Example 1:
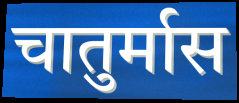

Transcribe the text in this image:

चातुर्मास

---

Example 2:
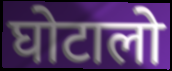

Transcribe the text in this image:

घोटालो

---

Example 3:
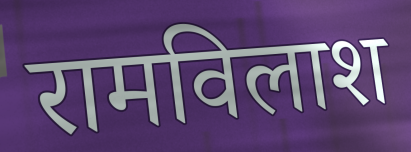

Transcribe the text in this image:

रामविलाश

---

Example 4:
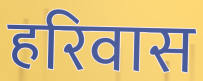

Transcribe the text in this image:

हरिवास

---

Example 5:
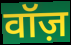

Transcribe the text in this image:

वॉज़